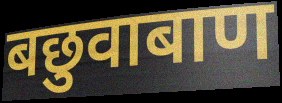
बछुवाबाण